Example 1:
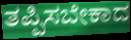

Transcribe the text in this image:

ತಪ್ಪಿಸಬೇಕಾದ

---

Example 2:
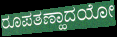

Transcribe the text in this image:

ರೂಪತಣ್ಹಾದಯೋ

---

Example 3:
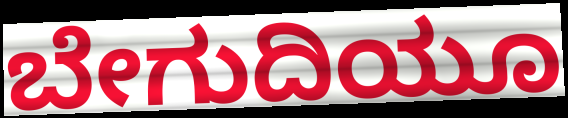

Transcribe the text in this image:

ಬೇಗುದಿಯೂ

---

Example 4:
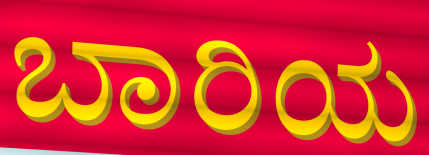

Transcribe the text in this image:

ಬಾರಿಯ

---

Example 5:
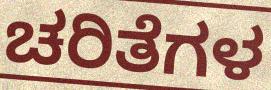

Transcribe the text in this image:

ಚರಿತೆಗಳ